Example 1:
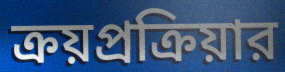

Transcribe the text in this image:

ক্রয়প্রক্রিয়ার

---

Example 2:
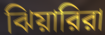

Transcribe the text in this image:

ঝিয়ারিরা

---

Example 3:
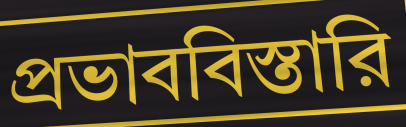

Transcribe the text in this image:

প্রভাববিস্তারি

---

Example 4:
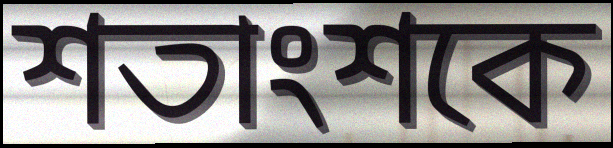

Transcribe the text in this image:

শতাংশকে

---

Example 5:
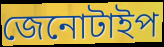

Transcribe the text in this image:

জেনোটাইপ